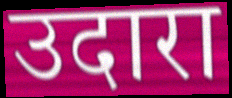
उदारा